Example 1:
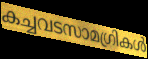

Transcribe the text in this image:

കച്ചവടസാമഗ്രികൾ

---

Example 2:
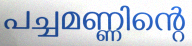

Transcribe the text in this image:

പച്ചമണ്ണിന്റെ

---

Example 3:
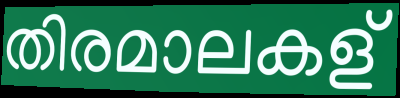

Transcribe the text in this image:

തിരമാലകള്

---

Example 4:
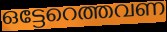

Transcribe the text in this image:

ഒട്ടേറെത്തവണ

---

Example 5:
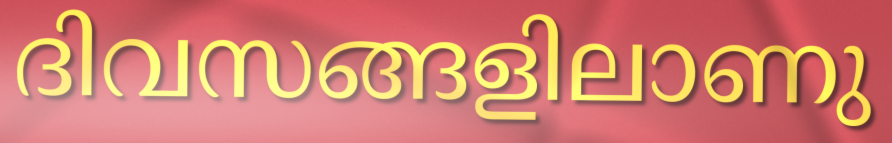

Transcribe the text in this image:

ദിവസങ്ങളിലാണു